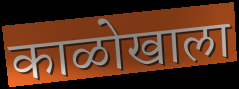
काळोखाला